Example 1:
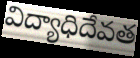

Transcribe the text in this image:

విద్యాధిదేవత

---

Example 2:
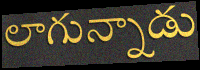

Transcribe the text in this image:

లాగున్నాడు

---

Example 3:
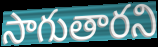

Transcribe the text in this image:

సాగుతారని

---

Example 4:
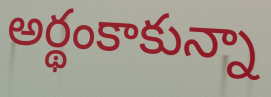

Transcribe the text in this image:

అర్థంకాకున్నా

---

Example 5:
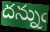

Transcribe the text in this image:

దన్నుఁ